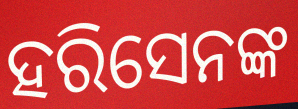
ହରିସେନଙ୍କ